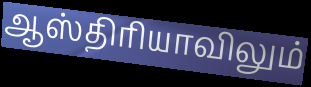
ஆஸ்திரியாவிலும்